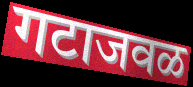
गटाजवळ